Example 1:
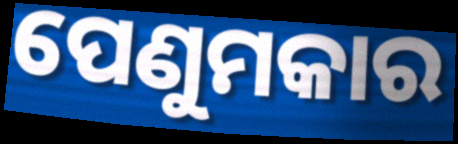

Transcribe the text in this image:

ପେଣୁମକାର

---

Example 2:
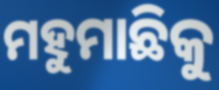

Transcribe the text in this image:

ମହୁମାଛିକୁ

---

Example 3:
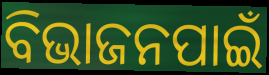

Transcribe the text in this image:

ବିଭାଜନପାଇଁ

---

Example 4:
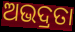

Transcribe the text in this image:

ଅଭଦ୍ରତା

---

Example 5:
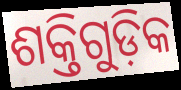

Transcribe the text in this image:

ଶକ୍ତିଗୁଡ଼ିକ